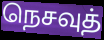
நெசவுத்